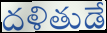
దళితుడే